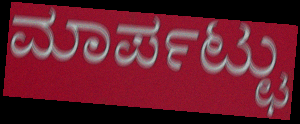
ಮಾರ್ಪಟ್ಟು